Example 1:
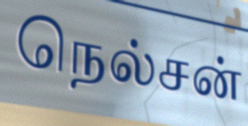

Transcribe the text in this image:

நெல்சன்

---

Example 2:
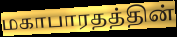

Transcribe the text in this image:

மகாபாரதத்தின்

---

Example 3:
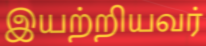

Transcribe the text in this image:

இயற்றியவர்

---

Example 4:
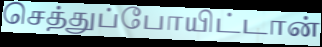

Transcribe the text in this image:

செத்துப்போயிட்டான்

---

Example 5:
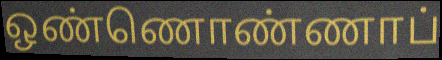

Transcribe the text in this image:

ஒண்ணொண்ணாப்